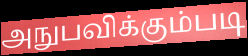
அநுபவிக்கும்படி